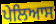
ਪੇਲਿਆਸ